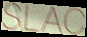
SLAC